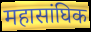
महासांघिक